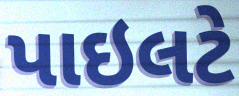
પાઇલટે